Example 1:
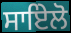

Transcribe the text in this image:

ਸਾਇੇਲੋ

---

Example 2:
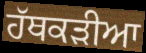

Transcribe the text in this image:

ਹੱਥਕੜੀਆ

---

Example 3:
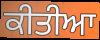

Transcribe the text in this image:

ਕੀਤੀਆ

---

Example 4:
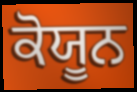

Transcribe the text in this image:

ਕੋਯੂਨ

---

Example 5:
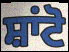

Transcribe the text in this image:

ਸ਼ਾਂਟੋ